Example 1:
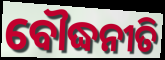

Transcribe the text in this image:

ବୌଦ୍ଧନୀତି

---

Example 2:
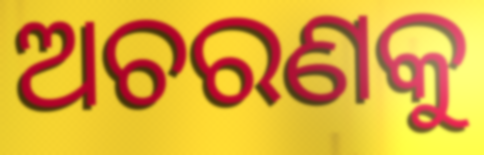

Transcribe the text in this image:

ଅଚରଣକୁ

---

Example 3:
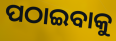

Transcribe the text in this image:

ପଠାଇବାକୁ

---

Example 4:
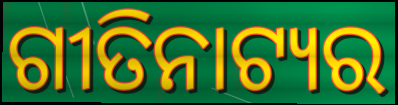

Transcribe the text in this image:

ଗୀତିନାଟ୍ୟର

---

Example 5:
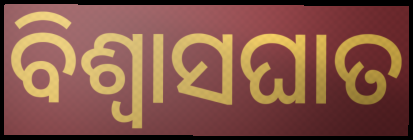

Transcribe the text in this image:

ବିଶ୍ବାସଘାତ